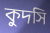
কুদসি